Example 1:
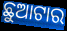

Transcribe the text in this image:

ଛୁଆଟାର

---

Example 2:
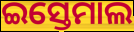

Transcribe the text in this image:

ଇସ୍ତେମାଲ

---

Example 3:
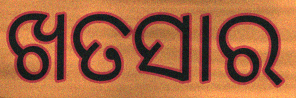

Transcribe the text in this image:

ଖତସାର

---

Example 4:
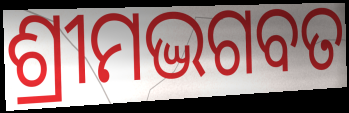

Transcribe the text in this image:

ଶ୍ରୀମଦ୍ଭଗବତ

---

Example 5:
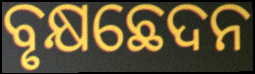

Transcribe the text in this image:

ବୃକ୍ଷଛେଦନ